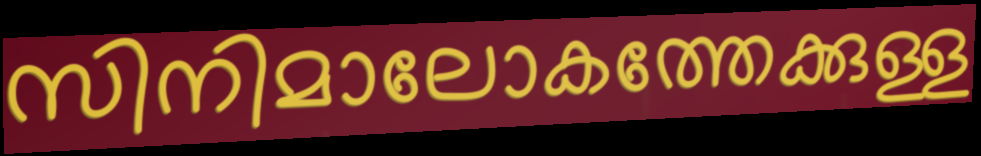
സിനിമാലോകത്തേക്കുള്ള